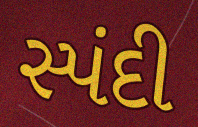
સ્પંદી